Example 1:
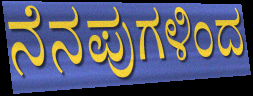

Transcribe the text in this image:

ನೆನಪುಗಳಿಂದ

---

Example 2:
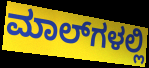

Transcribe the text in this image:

ಮಾಲ್‌ಗಳಲ್ಲಿ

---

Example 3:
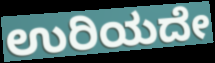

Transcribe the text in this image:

ಉರಿಯದೇ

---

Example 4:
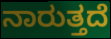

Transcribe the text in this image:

ನಾರುತ್ತದೆ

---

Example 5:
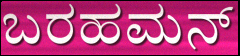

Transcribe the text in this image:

ಬರಹಮನ್